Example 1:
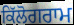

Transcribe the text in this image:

ਕਿੱਲੋਗਰਾਮ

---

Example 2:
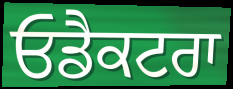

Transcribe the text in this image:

ਓਡੈਕਟਰਾ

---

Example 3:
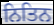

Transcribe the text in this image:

ਨਿਤਿਨ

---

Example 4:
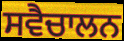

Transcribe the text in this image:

ਸਵੈਚਾਲਨ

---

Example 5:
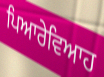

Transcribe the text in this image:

ਪਿਆਰੇਵਿਆਹ